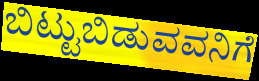
ಬಿಟ್ಟುಬಿಡುವವನಿಗೆ